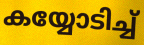
കയ്യോടിച്ച്